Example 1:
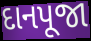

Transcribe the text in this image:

દાનપૂજા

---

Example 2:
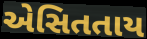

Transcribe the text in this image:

એસિતતાય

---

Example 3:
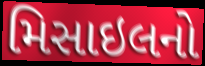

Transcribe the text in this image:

મિસાઇલનો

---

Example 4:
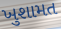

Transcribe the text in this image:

ખુશામત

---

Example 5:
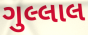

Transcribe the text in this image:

ગુલ્લાલ